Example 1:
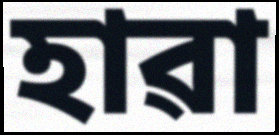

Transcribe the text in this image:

হাৱা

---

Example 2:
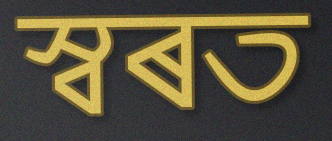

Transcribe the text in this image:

স্বৰত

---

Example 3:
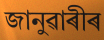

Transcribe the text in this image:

জানুৱাৰীৰ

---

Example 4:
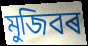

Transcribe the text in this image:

মুজিবৰ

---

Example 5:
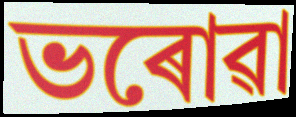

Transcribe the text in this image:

ভৰোৱা